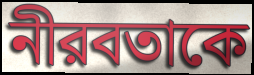
নীরবতাকে